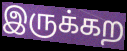
இருக்கற